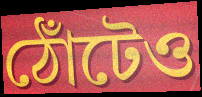
ঠোঁটেও